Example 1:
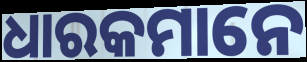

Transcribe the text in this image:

ଧାରକମାନେ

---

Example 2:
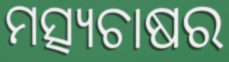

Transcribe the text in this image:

ମତ୍ସ୍ୟଚାଷର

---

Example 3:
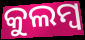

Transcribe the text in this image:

କୁଲମ୍ବ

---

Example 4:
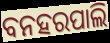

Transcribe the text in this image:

ବନହରପାଲି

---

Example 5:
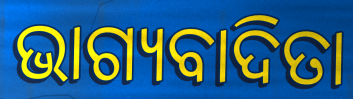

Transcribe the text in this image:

ଭାଗ୍ୟବାଦିତା